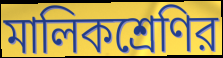
মালিকশ্রেণির